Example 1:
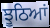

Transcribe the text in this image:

ਝੂਠਿਆਂ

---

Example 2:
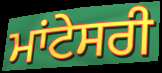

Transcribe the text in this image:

ਮਾਂਟੇਸਰੀ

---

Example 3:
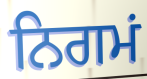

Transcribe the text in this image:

ਨਿਗਮਂ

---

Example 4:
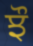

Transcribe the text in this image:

ਝੌ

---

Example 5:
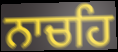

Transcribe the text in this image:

ਨਾਚਹਿ